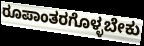
ರೂಪಾಂತರಗೊಳ್ಳಬೇಕು